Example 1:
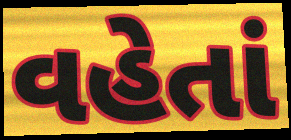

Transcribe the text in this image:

વહેતાં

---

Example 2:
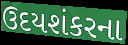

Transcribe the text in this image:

ઉદયશંકરના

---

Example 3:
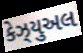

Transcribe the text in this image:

કેઝ્યુઅલ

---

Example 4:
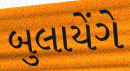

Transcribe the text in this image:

બુલાયેંગે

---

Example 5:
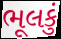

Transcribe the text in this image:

ભૂલકું